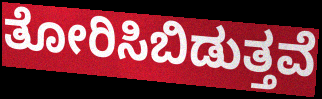
ತೋರಿಸಿಬಿಡುತ್ತವೆ